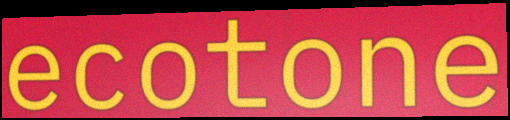
ecotone